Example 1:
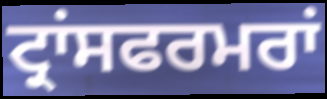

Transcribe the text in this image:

ਟ੍ਰਾਂਸਫਰਮਰਾਂ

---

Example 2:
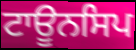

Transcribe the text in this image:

ਟਾਊਨਸਿਪ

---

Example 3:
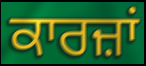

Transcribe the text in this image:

ਕਾਰਜ਼ਾਂ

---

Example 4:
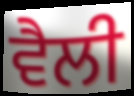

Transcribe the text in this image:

ਵੈਲੀ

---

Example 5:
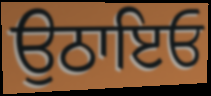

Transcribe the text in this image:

ਉਠਾਇਓ